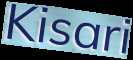
Kisari